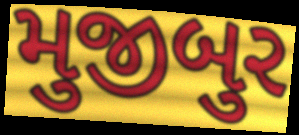
મુજીબુર